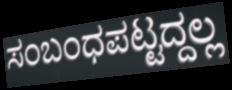
ಸಂಬಂಧಪಟ್ಟದ್ದಲ್ಲ